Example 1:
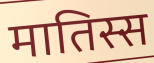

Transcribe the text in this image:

मातिस्स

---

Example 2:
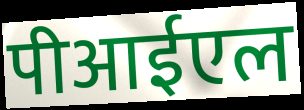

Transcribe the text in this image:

पीआईएल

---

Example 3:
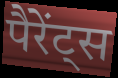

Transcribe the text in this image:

पैरेंट्स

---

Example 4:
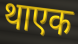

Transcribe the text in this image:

थाएक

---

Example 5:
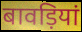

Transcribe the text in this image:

बावड़ियां